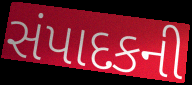
સંપાદકની